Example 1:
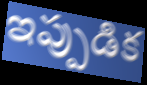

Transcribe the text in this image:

ఇప్పుడిక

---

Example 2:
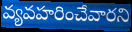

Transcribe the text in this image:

వ్యవహరించేవారని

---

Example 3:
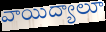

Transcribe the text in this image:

వాయిద్యాలూ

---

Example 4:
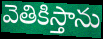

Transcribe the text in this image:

వెతికిస్తాను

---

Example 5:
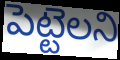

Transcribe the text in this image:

పెట్టెలని